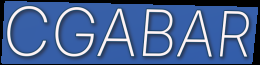
CGABAR